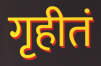
गृहीतं